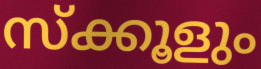
സ്ക്കൂളും